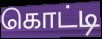
கொட்டி